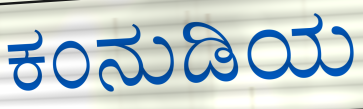
ಕಂನುಡಿಯ